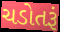
ચડોતરૂં